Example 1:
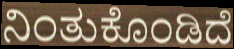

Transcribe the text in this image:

ನಿಂತುಕೊಂಡಿದೆ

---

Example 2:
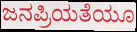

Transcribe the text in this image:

ಜನಪ್ರಿಯತೆಯೂ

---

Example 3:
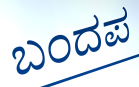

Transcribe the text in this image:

ಬಂದಪ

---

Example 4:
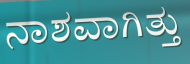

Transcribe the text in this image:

ನಾಶವಾಗಿತ್ತು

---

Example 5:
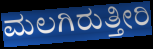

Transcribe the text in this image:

ಮಲಗಿರುತ್ತೀರಿ